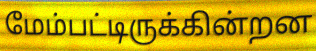
மேம்பட்டிருக்கின்றன